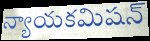
న్యాయకమిషన్